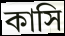
কাসি